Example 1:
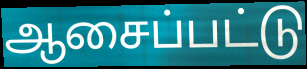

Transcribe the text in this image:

ஆசைப்பட்டு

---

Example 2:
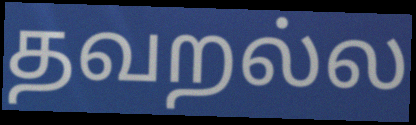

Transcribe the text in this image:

தவறல்ல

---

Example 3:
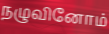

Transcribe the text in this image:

நழுவினோம்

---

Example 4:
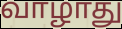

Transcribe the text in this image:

வாழாது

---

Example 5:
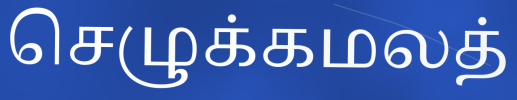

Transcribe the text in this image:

செழுக்கமலத்